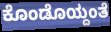
ಕೊಂಡೊಯ್ದಂತೆ